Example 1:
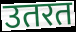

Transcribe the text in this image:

उतरत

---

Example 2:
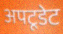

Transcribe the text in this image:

अपटूडेट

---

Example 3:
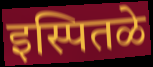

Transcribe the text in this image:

इस्पितळे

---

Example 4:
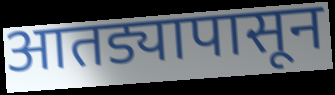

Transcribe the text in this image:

आतड्यापासून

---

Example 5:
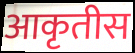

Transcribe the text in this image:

आकृतीस